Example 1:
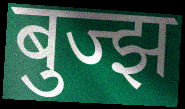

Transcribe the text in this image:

बुज्झ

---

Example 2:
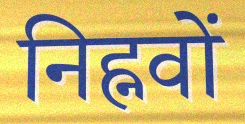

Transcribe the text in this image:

निह्नवों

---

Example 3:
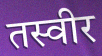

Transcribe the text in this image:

तस्‍वीर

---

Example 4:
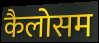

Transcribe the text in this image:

कैलोसम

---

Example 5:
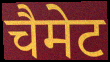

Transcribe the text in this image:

चैमेट